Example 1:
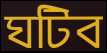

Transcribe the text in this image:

ঘটিব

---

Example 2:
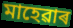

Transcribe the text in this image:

মাহেৱাৰ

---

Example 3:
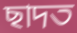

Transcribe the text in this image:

ছাদত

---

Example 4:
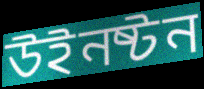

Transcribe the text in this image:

উইনষ্টন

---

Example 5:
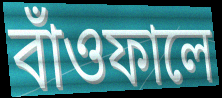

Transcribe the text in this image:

বাঁওফালে